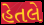
હેતલે